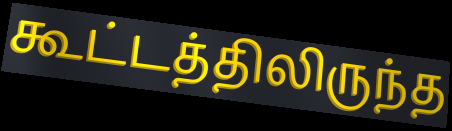
கூட்டத்திலிருந்த